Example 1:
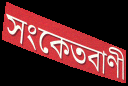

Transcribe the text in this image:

সংকেতবাণী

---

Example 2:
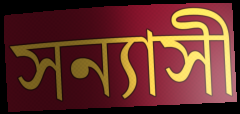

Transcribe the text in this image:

সন্যাসী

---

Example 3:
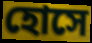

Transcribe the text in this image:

হোসে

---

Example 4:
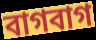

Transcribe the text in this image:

বাগবাগ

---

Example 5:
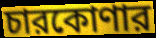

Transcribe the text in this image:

চারকোণার